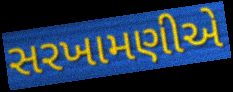
સરખામણીએ